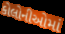
કોલોનીઓમાં